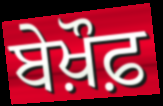
ਬੇਖ਼ੌਫ਼